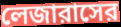
লেজারাসের